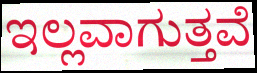
ಇಲ್ಲವಾಗುತ್ತವೆ